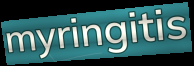
myringitis